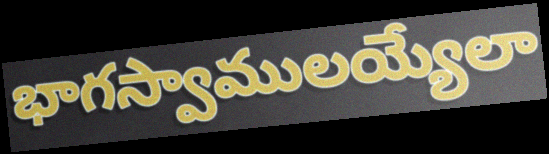
భాగస్వాములయ్యేలా